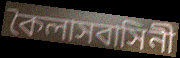
কৈলাসবাসিনী